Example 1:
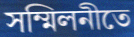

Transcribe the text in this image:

সম্মিলনীতে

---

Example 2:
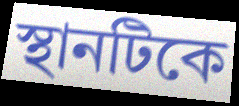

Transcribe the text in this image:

স্থানটিকে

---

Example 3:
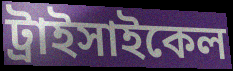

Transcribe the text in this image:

ট্রাইসাইকেল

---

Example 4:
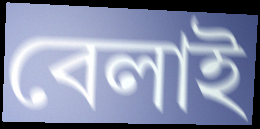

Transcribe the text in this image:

বেলাই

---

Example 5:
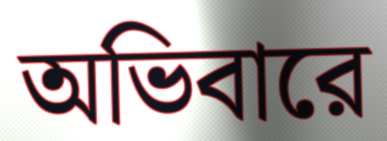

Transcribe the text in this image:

অভিবারে